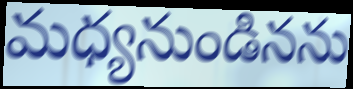
మధ్యనుండినను